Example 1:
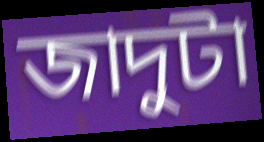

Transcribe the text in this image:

জাদুটা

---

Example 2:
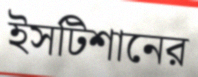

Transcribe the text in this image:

ইসটিশানের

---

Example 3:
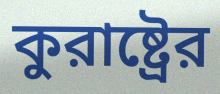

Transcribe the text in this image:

কুরাষ্ট্রের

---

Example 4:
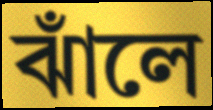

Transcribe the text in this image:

ঝাঁলে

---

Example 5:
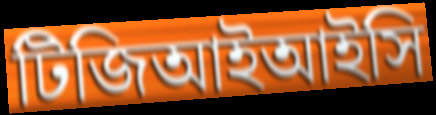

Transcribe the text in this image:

টিজিআইআইসি